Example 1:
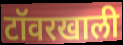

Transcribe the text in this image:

टॉवरखाली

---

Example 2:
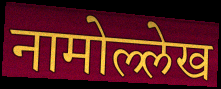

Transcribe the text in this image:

नामोल्लेख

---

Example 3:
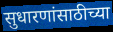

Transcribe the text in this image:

सुधारणांसाठीच्या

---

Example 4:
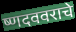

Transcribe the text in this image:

ष्णदववराचे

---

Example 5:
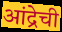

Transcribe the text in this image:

आंद्रेची